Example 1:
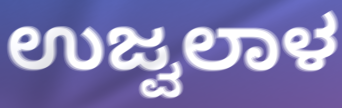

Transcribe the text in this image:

ಉಜ್ವಲಾಳ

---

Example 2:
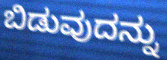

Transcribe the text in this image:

ಬಿಡುವುದನ್ನು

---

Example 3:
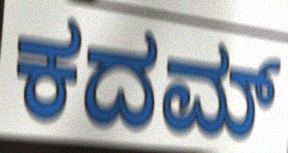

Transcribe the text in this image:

ಕದಮ್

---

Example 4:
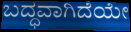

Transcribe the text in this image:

ಬದ್ಧವಾಗಿದೆಯೇ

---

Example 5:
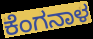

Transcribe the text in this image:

ಕೆಂಗನಾಳ